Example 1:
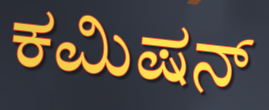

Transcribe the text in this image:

ಕಮಿಷನ್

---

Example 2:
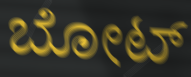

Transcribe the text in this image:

ಬೋಟ್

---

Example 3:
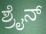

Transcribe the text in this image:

ಶ್ರೈನ್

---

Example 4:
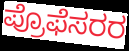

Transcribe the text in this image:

ಪ್ರೊಫೆಸರರ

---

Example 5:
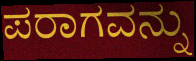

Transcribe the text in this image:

ಪರಾಗವನ್ನು